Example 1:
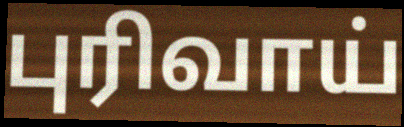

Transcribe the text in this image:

புரிவாய்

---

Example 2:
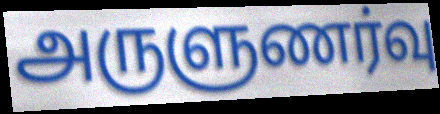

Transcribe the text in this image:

அருளுணர்வு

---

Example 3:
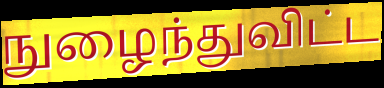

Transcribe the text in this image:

நுழைந்துவிட்ட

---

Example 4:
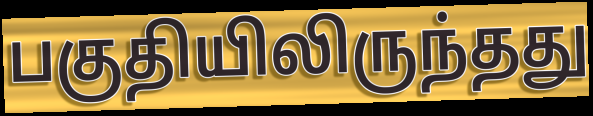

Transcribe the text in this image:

பகுதியிலிருந்தது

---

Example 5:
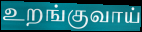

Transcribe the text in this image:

உறங்குவாய்